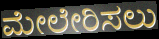
ಮೇಲೇರಿಸಲು